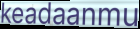
keadaanmu